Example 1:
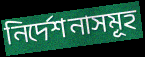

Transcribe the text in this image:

নির্দেশনাসমূহ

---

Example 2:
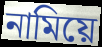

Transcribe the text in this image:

নামিয়ে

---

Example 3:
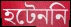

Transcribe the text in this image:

হটেননি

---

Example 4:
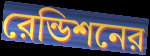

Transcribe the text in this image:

রেন্ডিশনের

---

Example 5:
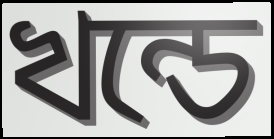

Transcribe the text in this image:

খন্ডে